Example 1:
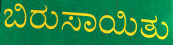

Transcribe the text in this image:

ಬಿರುಸಾಯಿತು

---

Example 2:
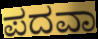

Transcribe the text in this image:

ಪದವಾ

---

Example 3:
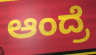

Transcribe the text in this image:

ಆಂದ್ರೆ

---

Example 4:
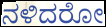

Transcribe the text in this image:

ನಳಿದರೋ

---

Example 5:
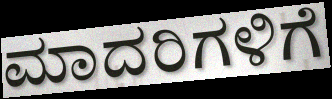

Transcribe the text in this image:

ಮಾದರಿಗಳಿಗೆ